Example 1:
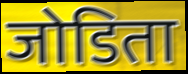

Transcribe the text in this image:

जोडिता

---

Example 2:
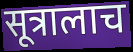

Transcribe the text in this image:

सूत्रालाच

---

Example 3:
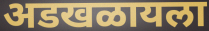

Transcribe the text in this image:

अडखळायला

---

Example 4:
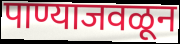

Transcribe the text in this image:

पाण्याजवळून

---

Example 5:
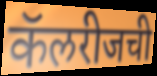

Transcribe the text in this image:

कॅलरीजची